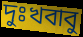
দুঃখবাবু